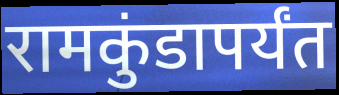
रामकुंडापर्यंत